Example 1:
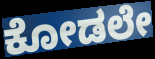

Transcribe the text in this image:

ಕೋಡಲೇ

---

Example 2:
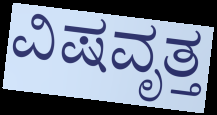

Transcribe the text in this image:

ವಿಷವೃತ್ತ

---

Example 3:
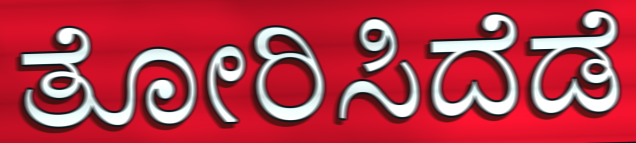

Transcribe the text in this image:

ತೋರಿಸಿದೆಡೆ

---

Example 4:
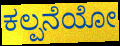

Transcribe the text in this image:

ಕಲ್ಪನೆಯೋ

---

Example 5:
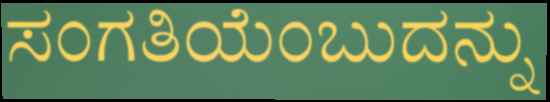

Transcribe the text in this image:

ಸಂಗತಿಯೆಂಬುದನ್ನು